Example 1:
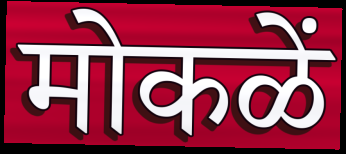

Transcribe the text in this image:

मोकळें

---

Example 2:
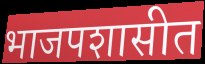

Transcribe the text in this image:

भाजपशासीत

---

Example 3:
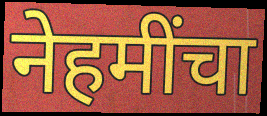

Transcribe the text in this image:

नेहमींचा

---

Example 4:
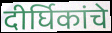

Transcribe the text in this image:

दीर्घिकांचे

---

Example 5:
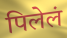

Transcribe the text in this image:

पिलेलं